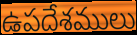
ఉపదేశములు